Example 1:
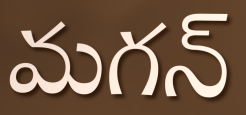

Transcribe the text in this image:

మగన్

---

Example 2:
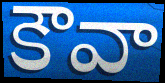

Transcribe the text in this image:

కౌవా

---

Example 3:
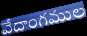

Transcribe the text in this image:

వేదాంగముల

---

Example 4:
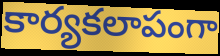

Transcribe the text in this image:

కార్యకలాపంగా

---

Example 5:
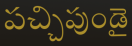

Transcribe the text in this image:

పచ్చిపుండై